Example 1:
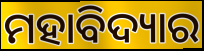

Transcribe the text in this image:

ମହାବିଦ୍ୟାର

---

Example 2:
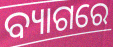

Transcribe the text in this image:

ବ୍ୟାଗରେ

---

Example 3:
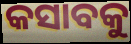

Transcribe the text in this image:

କସାବକୁ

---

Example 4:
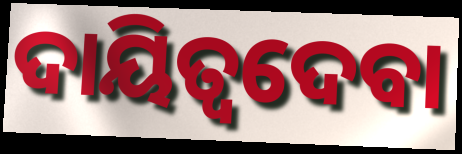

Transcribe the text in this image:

ଦାୟିତ୍ୱଦେବା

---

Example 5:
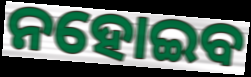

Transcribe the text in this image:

ନହୋଇବ